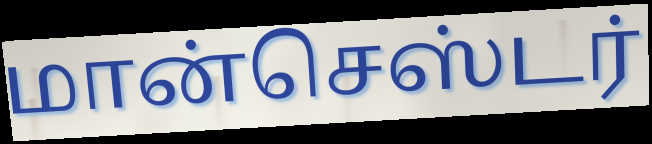
மான்செஸ்டர்